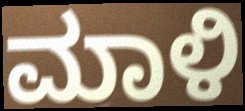
ಮಾಳಿ